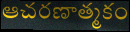
ఆచరణాత్మకం